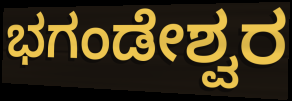
ಭಗಂಡೇಶ್ವರ